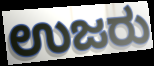
ಉಜರು